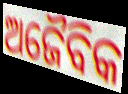
ଅଜୈବିକ